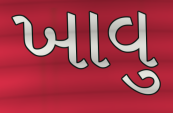
ખાવુ